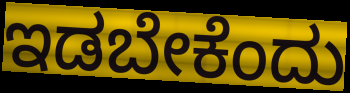
ಇಡಬೇಕೆಂದು